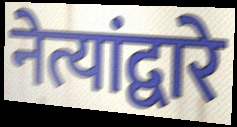
नेत्यांद्वारे